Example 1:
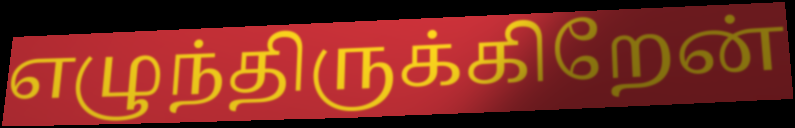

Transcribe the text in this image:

எழுந்திருக்கிறேன்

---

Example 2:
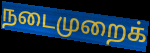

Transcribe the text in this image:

நடைமுறைக்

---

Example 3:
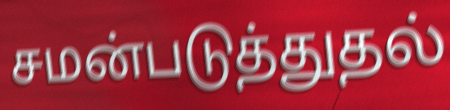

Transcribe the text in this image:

சமன்படுத்துதல்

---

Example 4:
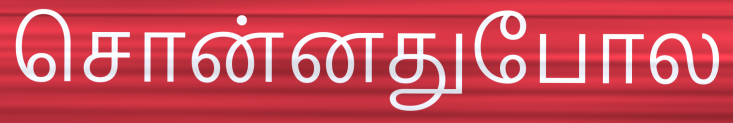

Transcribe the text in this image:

சொன்னதுபோல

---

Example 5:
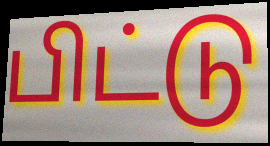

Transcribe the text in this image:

பிட்டு